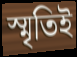
স্মৃতিই